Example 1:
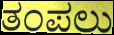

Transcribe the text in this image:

ತಂಪಲು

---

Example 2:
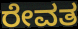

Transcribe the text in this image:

ರೇವತ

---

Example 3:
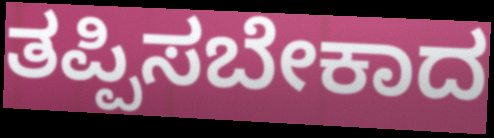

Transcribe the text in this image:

ತಪ್ಪಿಸಬೇಕಾದ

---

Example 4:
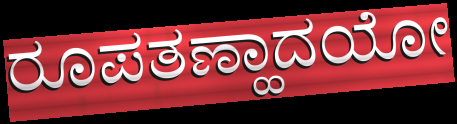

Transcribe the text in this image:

ರೂಪತಣ್ಹಾದಯೋ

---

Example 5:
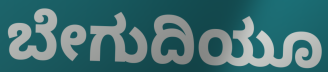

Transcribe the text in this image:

ಬೇಗುದಿಯೂ